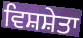
ਵਿਸ਼ਸ਼ੇਤਾ